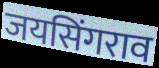
जयसिंगराव